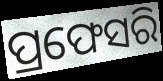
ପ୍ରଫେସରି